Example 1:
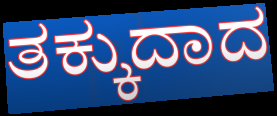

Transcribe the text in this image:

ತಕ್ಕುದಾದ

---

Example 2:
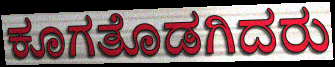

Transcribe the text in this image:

ಕೂಗತೊಡಗಿದರು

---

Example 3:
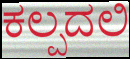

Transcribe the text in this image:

ಕಲ್ಪದಲಿ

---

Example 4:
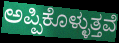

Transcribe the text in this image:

ಅಪ್ಪಿಕೊಳ್ಳುತ್ತವೆ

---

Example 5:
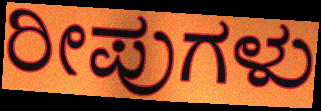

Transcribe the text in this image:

ರೀಪುಗಳು